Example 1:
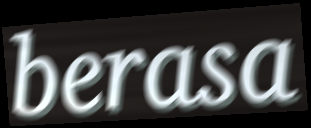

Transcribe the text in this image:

berasa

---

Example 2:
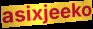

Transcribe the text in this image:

asixjeeko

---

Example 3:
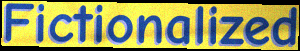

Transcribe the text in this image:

Fictionalized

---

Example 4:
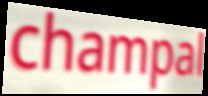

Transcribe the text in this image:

champal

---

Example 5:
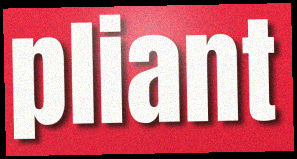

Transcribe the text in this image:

pliant